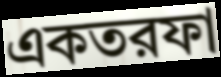
একতরফা